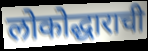
लोकोद्धाराची